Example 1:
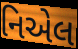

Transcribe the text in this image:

નિએલ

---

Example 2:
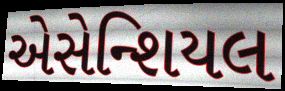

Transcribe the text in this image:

એસેન્શિયલ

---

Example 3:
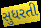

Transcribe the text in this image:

સુધરતી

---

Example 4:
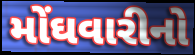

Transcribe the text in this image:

મોંઘવારીનો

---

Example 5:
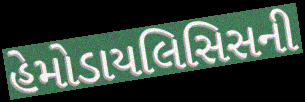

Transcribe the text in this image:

હેમોડાયલિસિસની